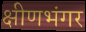
क्षीणभंगर